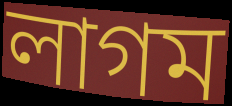
লাগম